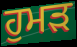
ਹੁਮੜ